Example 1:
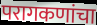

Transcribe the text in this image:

परागकणांचा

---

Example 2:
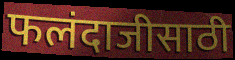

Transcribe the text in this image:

फलंदाजीसाठी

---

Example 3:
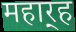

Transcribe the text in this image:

महार्ह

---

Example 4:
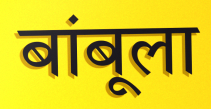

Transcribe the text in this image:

बांबूला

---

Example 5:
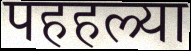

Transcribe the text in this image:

पहहल्या